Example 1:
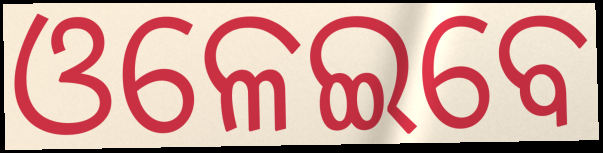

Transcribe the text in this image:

ଓଳେଇବେ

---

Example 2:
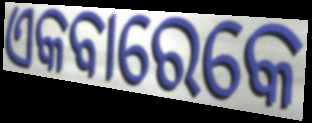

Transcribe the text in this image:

ଏକବାରେକେ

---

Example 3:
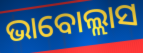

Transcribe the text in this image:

ଭାବୋଲ୍ଲାସ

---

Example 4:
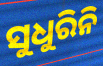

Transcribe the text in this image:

ସୁଧୁରିନି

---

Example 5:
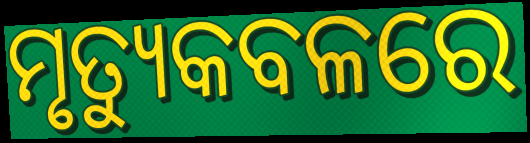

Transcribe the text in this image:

ମୃତ୍ୟୁକବଳରେ